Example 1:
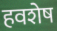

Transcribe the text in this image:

हवशेष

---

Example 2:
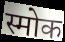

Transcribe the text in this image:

स्मोक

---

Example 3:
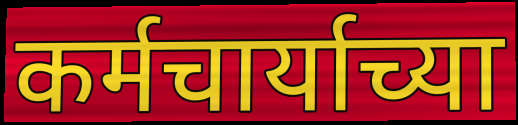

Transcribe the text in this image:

कर्मचार्याच्या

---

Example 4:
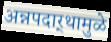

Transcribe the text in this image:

अन्नपदार्थामुळे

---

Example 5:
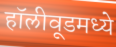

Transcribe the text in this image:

हॉलीवूडमध्ये